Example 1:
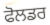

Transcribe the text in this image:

ਫੋਲਡਰ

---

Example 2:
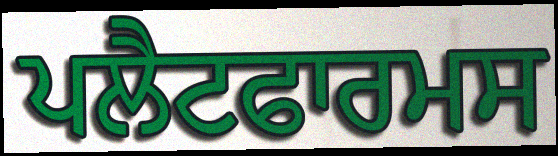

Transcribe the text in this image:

ਪਲੈਟਫਾਰਮਸ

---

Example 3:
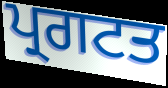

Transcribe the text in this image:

ਪ੍ਰਗਟਤ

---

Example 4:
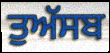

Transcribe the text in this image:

ਤੁਅੱਸਬ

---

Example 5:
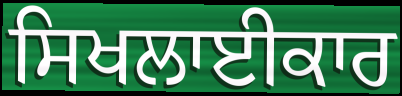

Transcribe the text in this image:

ਸਿਖਲਾਈਕਾਰ